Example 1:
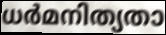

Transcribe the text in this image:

ധർമനിത്യതാ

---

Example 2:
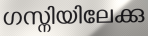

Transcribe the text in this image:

ഗസ്നിയിലേക്കു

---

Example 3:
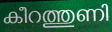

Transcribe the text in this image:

കീറത്തുണി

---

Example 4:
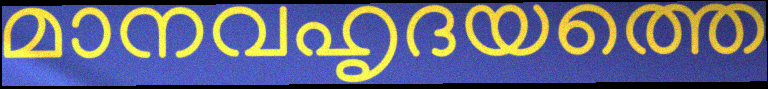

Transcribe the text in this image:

മാനവഹൃദയത്തെ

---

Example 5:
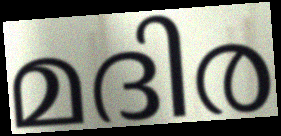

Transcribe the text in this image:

മദിര